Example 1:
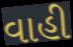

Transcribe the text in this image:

વાહી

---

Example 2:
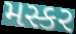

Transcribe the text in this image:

મસ્કર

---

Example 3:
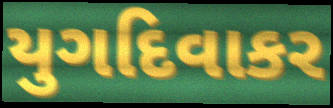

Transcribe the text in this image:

યુગદિવાકર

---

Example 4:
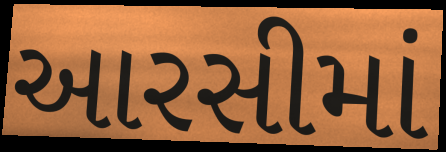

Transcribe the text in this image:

આરસીમાં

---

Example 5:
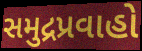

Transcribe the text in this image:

સમુદ્રપ્રવાહો